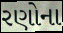
રણોના